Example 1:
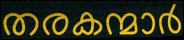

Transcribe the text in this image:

തരകന്മാർ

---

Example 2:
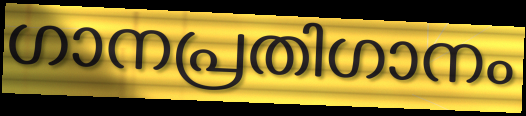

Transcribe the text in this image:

ഗാനപ്രതിഗാനം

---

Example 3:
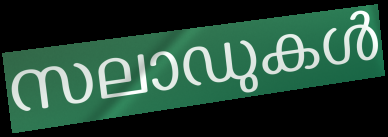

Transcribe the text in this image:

സലാഡുകൾ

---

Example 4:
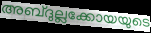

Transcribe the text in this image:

അബ്ദുല്ലക്കോയയുടെ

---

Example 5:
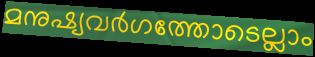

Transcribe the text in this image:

മനുഷ്യവർഗത്തോടെല്ലാം